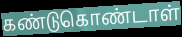
கண்டுகொண்டாள்